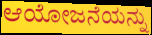
ಆಯೋಜನೆಯನ್ನು